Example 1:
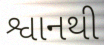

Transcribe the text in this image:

શ્વાનથી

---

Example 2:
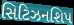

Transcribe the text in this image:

સિટિઝનશિપ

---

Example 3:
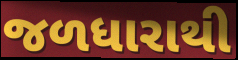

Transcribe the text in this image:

જળધારાથી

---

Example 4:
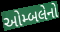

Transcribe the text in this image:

ઓમ્બલેનો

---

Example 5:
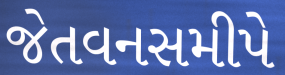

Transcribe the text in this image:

જેતવનસમીપે